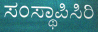
ಸಂಸ್ಥಾಪಿಸಿರಿ